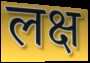
लक्ष